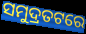
ସମୁଦ୍ରତଟରେ